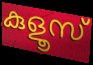
കുളൂസ്